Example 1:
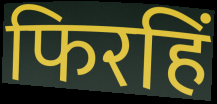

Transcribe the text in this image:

फिरहिं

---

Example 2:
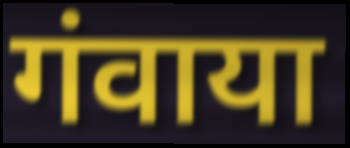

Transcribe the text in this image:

गंवाया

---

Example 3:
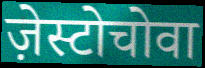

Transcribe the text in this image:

ज़ेस्टोचोवा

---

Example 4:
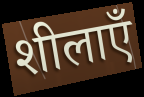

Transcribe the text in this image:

शीलाएँ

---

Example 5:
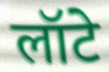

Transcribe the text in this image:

लॉटे